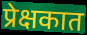
प्रेक्षकात